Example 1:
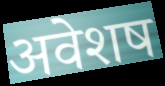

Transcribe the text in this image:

अवेशष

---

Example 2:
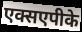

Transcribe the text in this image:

एक्सएपीके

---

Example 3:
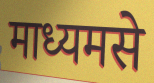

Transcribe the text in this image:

माध्यमसे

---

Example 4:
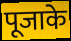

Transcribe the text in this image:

पूजाके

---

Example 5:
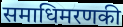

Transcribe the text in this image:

समाधिमरणकी